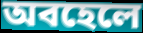
অবহেলে